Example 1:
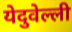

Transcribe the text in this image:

येदुवेल्ली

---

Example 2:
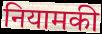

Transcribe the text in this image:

नियामकी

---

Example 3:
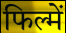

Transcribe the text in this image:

फिल्‍में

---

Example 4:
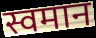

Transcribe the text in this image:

स्वमान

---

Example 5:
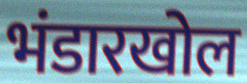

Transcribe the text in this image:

भंडारखोल